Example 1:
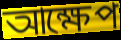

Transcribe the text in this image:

আক্ষেপ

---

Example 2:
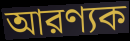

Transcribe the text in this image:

আরণ্যক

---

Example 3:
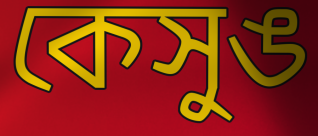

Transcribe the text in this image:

কেসুঙ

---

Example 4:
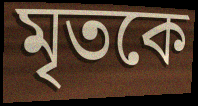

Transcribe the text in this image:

মৃতকে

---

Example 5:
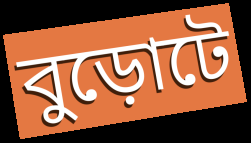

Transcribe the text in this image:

বুড়োটে